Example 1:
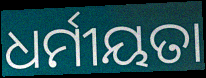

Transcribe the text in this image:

ଧର୍ମୀୟତା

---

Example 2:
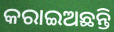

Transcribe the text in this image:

କରାଇଅଛନ୍ତି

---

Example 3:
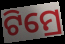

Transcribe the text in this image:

ଟିମ୍ରେ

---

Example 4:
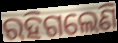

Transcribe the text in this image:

ରହିଗଲେଣି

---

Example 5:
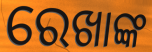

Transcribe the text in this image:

ରେଖାଙ୍କ